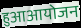
हुआआयोजन